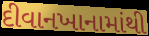
દીવાનખાનામાંથી